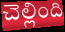
చెల్లింది